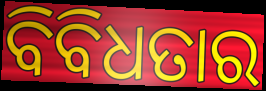
ବିବିଧତାର